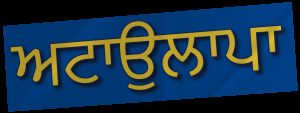
ਅਟਾਉਲਾਪਾ